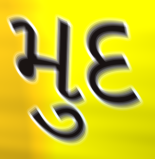
મુદ